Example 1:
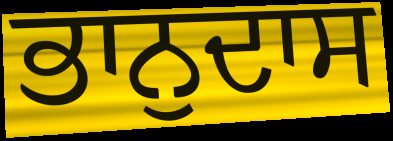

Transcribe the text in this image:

ਭਾਨੁਦਾਸ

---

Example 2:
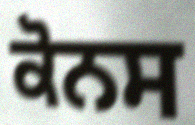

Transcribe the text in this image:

ਕੋਨਸ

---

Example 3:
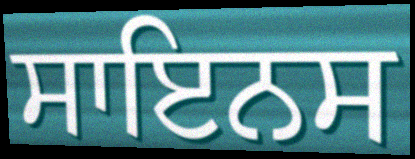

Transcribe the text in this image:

ਸਾਇਨਸ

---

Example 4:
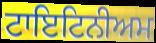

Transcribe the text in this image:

ਟਾਇਟਿਨੀਅਮ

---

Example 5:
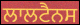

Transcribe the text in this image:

ਲਾਲਟੈਨਸ